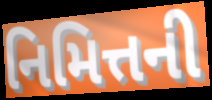
નિમિત્તની